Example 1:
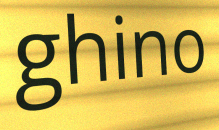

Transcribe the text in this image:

ghino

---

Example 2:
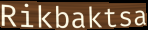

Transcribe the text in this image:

Rikbaktsa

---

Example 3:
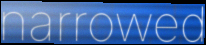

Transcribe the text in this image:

narrowed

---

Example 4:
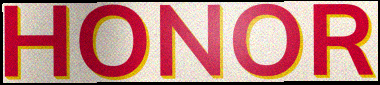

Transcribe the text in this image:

HONOR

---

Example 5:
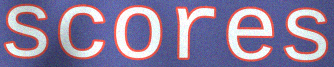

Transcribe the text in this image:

scores